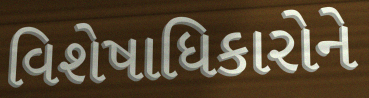
વિશેષાધિકારોને